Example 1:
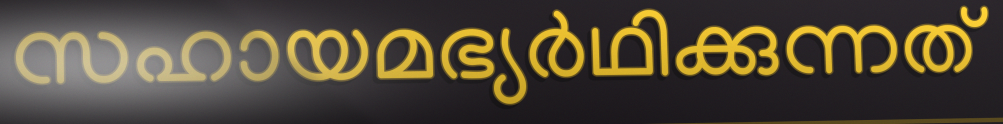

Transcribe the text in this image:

സഹായമഭ്യർഥിക്കുന്നത്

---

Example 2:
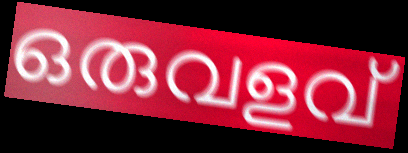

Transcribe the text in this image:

ഒരുവളവ്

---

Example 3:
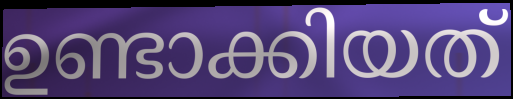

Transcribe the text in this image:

ഉണ്ടാക്കിയത്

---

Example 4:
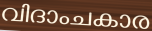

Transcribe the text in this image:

വിദാംചകാര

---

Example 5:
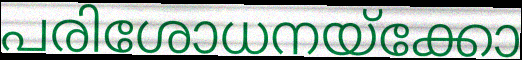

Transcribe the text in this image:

പരിശോധനയ്ക്കോ